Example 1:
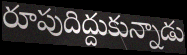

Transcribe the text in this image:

రూపుదిద్దుకున్నాడు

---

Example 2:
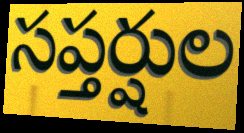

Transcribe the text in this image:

సప్తర్షుల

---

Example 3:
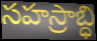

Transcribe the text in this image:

సహస్రాబ్ధి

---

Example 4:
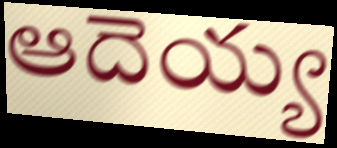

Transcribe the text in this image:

ఆదెయ్య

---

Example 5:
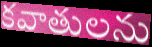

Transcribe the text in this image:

కవాతులను